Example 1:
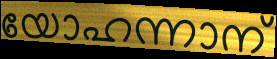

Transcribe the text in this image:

യോഹന്നാന്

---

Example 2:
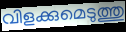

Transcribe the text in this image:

വിളക്കുമെടുത്തു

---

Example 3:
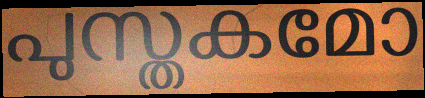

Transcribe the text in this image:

പുസ്തകമോ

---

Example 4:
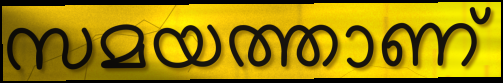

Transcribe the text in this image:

സമയത്താണ്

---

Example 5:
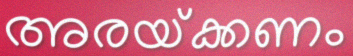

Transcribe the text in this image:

അരയ്‌ക്കണം